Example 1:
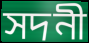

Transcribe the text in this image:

সদনী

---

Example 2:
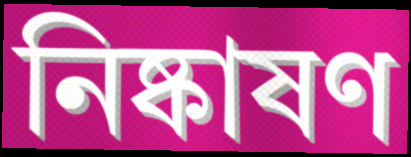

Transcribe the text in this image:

নিষ্কাষণ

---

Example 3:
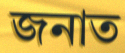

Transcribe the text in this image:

জনাত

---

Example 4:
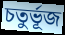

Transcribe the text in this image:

চতুৰ্ভূজ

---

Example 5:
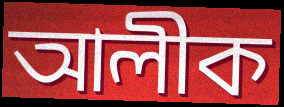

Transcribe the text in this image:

আলীক